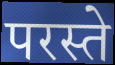
परस्ते